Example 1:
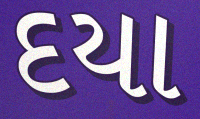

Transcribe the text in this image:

દયા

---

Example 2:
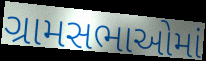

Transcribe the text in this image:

ગ્રામસભાઓમાં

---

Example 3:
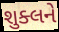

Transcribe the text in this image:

શુક્લને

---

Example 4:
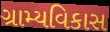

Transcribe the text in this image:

ગ્રામ્યવિકાસ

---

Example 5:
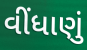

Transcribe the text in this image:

વીંધાણું